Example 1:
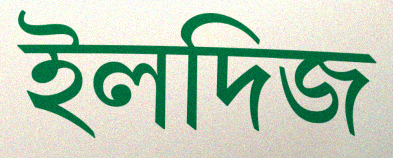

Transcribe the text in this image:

ইলদিজ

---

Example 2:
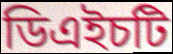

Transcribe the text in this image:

ডিএইচটি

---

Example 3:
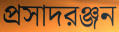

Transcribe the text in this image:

প্রসাদরঞ্জন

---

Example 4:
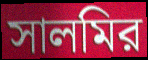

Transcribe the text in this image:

সালমির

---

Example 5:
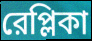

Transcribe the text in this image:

রেপ্লিকা